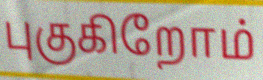
புகுகிறோம்